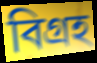
বিগ্ৰহ